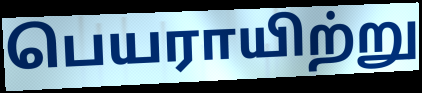
பெயராயிற்று